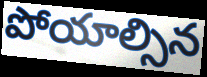
పోయాల్సిన